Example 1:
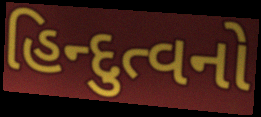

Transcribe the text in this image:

હિન્દુત્વનો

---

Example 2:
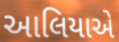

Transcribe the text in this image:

આલિયાએ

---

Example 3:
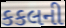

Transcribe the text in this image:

કકલની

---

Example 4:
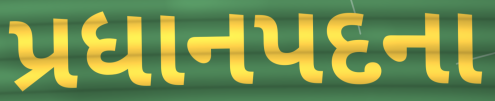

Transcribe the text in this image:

પ્રધાનપદના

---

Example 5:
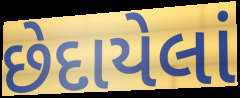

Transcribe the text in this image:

છેદાયેલાં